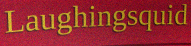
Laughingsquid